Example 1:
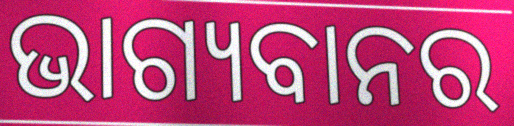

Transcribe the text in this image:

ଭାଗ୍ୟବାନର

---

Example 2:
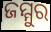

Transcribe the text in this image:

ଜମ୍ମୁର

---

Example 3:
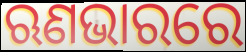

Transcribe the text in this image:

ଋଣଭାରରେ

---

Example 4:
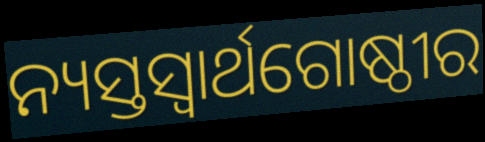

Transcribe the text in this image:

ନ୍ୟସ୍ତସ୍ୱାର୍ଥଗୋଷ୍ଠୀର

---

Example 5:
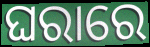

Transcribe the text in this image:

ଘରାରେ